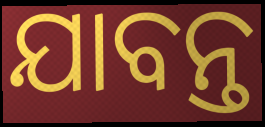
ଯାବନ୍ତ